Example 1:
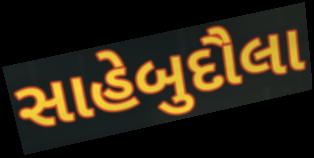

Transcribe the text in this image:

સાહેબુદૌલા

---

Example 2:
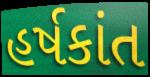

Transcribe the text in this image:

હર્ષકાંત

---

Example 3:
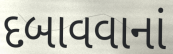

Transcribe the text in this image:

દબાવવાનાં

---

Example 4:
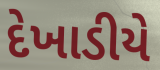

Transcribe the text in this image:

દેખાડીયે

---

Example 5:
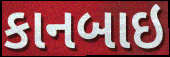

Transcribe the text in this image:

કાનબાઇ